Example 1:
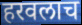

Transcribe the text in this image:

हरवलाच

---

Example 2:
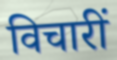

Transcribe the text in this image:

विचारीं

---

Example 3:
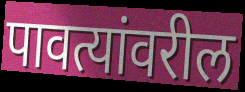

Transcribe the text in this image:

पावत्यांवरील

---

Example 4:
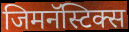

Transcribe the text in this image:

जिमनॅस्टिक्स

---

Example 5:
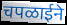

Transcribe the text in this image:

चपळाईने